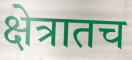
क्षेत्रातच